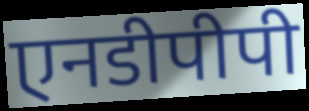
एनडीपीपी